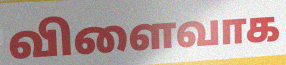
விளைவாக